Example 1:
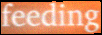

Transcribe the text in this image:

feeding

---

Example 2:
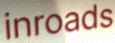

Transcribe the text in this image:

inroads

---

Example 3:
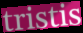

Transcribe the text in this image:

tristis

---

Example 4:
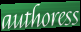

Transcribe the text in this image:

authoress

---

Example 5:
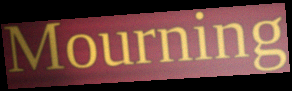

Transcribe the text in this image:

Mourning